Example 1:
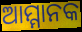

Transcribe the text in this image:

ଆମ୍ମାନକ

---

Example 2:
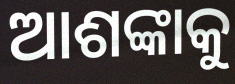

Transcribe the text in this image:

ଆଶଙ୍କାକୁ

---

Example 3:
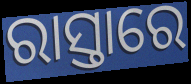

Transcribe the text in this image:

ରାସ୍ତାରେ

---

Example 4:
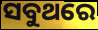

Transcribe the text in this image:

ସବୁଥରେ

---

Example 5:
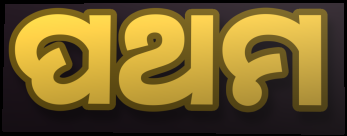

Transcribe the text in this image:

ପଥମ